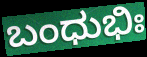
ಬಂಧುಭಿಃ